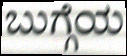
ಬುಗ್ಗೆಯ